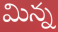
మిన్న